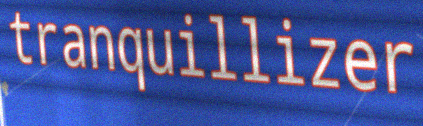
tranquillizer